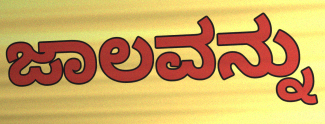
ಜಾಲವನ್ನು